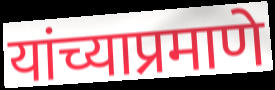
यांच्याप्रमाणे